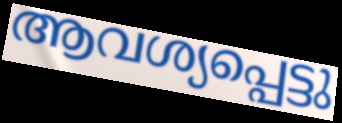
ആവശ്യപ്പെട്ടു